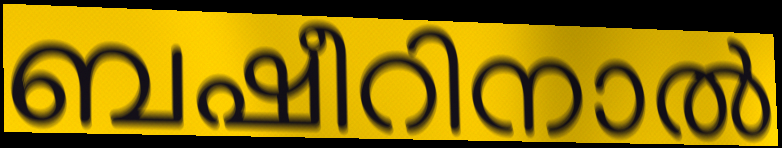
ബഷീറിനാൽ